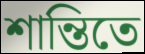
শান্তিতে